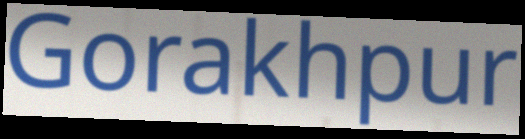
Gorakhpur